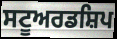
ਸਟੂਅਰਡਸ਼ਿਪ